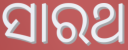
ସାରଥ